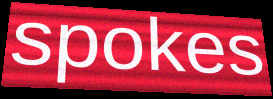
spokes